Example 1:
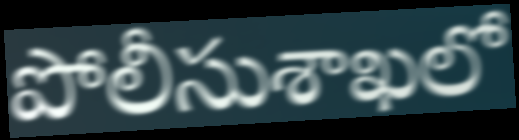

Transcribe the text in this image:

పోలీసుశాఖలో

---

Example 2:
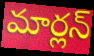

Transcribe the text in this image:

మార్లన్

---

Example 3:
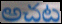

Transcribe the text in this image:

అచట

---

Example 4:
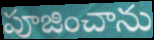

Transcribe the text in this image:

పూజించాను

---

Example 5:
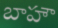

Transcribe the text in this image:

బాహౌ